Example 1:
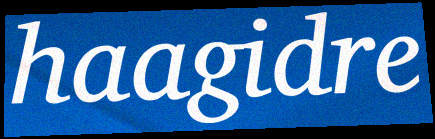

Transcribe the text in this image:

haagidre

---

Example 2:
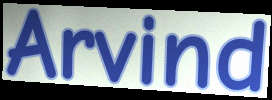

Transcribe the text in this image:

Arvind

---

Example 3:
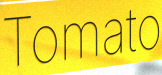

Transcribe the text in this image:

Tomato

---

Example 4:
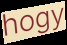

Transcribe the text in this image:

hogy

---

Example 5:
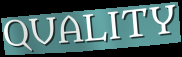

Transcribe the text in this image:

QUALITY